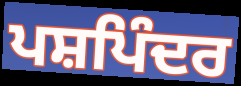
ਪਸ਼ਪਿੰਦਰ